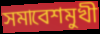
সমাবেশমুখী